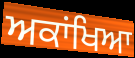
ਅਕਾਂਖਿਆ